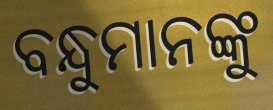
ବନ୍ଧୁମାନଙ୍କୁ